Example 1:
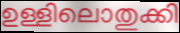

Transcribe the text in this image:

ഉള്ളിലൊതുക്കി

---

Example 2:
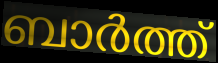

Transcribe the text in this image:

ബാർത്ത്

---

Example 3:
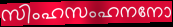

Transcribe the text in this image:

സിംഹസംഹനനോ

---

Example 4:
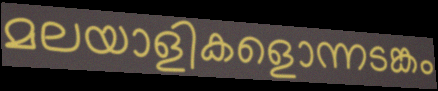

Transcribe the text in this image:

മലയാളികളൊന്നടങ്കം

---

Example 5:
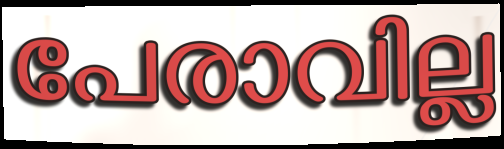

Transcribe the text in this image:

പേരാവില്ല